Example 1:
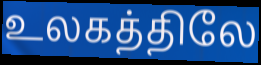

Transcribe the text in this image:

உலகத்திலே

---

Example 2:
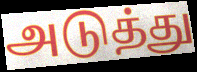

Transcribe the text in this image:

அடுத்து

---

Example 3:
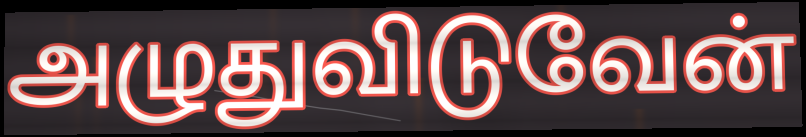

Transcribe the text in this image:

அழுதுவிடுவேன்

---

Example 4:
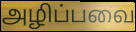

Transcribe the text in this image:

அழிப்பவை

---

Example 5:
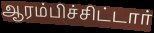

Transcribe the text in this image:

ஆரம்பிச்சிட்டார்